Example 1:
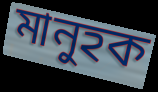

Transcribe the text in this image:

মানুহক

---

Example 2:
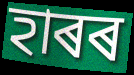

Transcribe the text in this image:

হাৰৰ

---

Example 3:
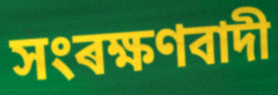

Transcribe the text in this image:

সংৰক্ষণবাদী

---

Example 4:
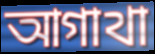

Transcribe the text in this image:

আগাথা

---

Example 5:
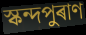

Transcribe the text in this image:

স্কন্দপুৰাণ